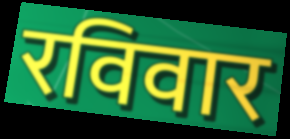
रविवार